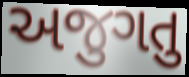
અજુગતુ